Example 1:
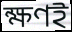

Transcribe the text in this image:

ক্ষণই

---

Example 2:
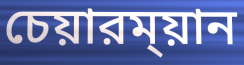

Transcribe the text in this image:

চেয়ারম্য়ান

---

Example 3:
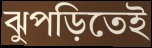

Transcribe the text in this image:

ঝুপড়িতেই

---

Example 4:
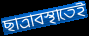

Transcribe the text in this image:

ছাত্রাবস্থাতেই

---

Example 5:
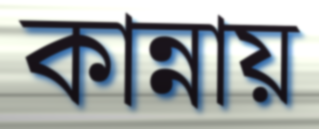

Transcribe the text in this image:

কান্নায়